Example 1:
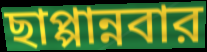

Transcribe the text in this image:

ছাপ্পান্নবার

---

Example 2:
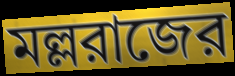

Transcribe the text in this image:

মল্লরাজের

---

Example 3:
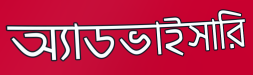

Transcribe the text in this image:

অ্যাডভাইসারি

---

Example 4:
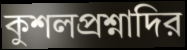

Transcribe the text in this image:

কুশলপ্রশ্নাদির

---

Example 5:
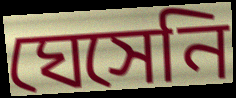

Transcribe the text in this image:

ঘেসেনি